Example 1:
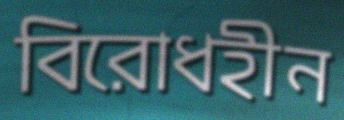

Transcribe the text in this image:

বিরোধহীন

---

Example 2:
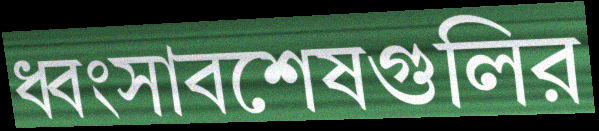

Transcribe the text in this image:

ধ্বংসাবশেষগুলির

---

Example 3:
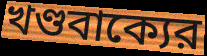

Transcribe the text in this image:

খণ্ডবাক্যের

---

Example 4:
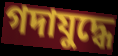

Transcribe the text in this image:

গদাযুদ্ধে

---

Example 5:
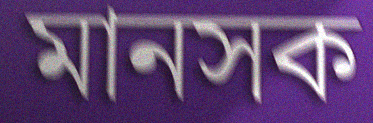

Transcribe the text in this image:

মানসক